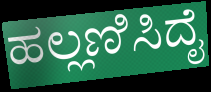
ಹಲ್ಲಣಿಸಿದೈ